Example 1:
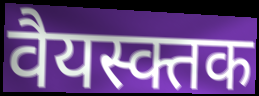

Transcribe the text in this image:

वैयस्क्तक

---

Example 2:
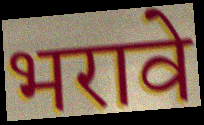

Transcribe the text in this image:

भरावे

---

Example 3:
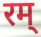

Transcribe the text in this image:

रम्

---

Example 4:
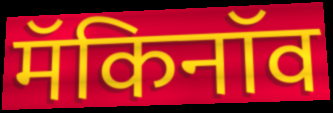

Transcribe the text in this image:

मॅकिनॉव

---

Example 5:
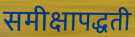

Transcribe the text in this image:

समीक्षापद्धती